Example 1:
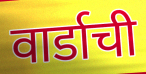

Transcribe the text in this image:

वार्डाची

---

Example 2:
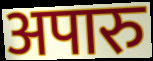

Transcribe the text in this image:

अपारु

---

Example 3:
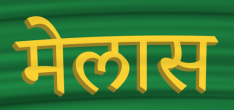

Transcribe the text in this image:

मेलास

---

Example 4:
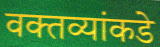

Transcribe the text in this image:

वक्तव्यांकडे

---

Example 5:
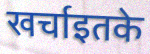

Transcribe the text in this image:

खर्चाइतके